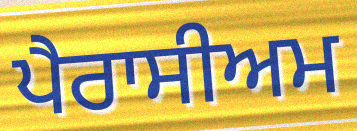
ਪੈਰਾਸੀਅਮ